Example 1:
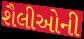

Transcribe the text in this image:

શૈલીઓની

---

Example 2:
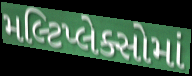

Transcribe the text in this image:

મલ્ટિપ્લેક્સોમાં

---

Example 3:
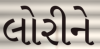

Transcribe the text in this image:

લોરીને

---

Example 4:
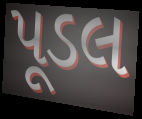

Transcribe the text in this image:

પૂડલ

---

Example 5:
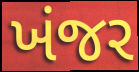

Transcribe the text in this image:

ખંજર